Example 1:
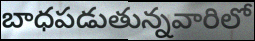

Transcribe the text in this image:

బాధపడుతున్నవారిలో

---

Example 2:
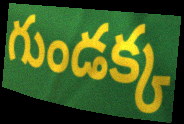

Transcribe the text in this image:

గుండక్క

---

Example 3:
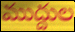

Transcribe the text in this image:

ముద్దుల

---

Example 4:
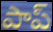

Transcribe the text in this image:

పాప్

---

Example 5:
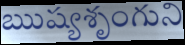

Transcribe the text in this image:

ఋష్యశృంగుని